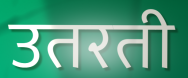
उतरती